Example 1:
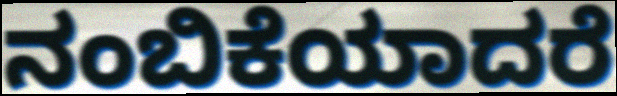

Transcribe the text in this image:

ನಂಬಿಕೆಯಾದರೆ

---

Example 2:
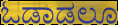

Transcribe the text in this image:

ಓಡಾಡಲೂ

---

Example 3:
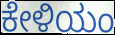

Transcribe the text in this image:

ಕೇಳಿಯಂ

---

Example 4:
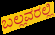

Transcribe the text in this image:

ಬಲ್ಲವರಲ್ಲಿ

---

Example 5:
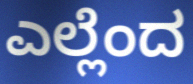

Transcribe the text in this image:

ಎಲ್ಲೆಂದ